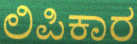
ಲಿಪಿಕಾರ